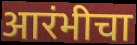
आरंभीचा